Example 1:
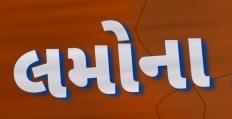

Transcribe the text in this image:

લમોના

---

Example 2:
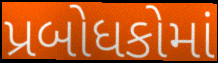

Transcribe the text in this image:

પ્રબોધકોમાં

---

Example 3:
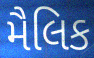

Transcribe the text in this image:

મૈલિક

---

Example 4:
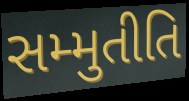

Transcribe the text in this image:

સમ્મુતીતિ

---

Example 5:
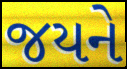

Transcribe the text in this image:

જયને